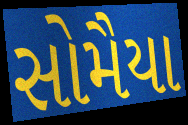
સોમૈયા